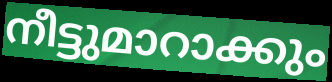
നീട്ടുമാറാക്കും